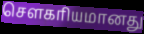
சௌகரியமானது